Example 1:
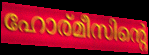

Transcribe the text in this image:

ഹോര്മീസിന്റെ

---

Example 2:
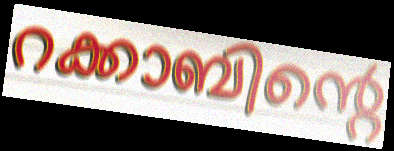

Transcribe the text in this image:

റക്കാബിന്റെ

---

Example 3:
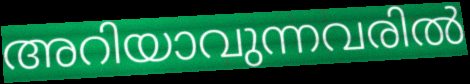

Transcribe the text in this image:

അറിയാവുന്നവരിൽ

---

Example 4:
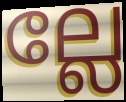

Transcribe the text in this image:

ല്ലേ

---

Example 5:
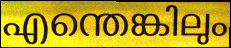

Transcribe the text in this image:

എന്തെങ്കിലും